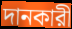
দানকারী